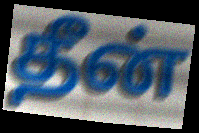
தீன்